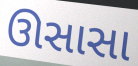
ઊસાસા